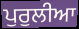
ਪੁਰੁਲੀਆ